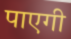
पाएगी